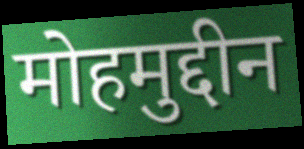
मोहमुद्दीन